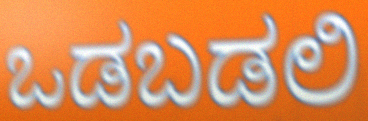
ಒಡಬಡಲಿ